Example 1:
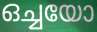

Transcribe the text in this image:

ഒച്ചയോ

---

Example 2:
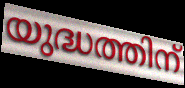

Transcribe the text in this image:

യുദ്ധത്തിന്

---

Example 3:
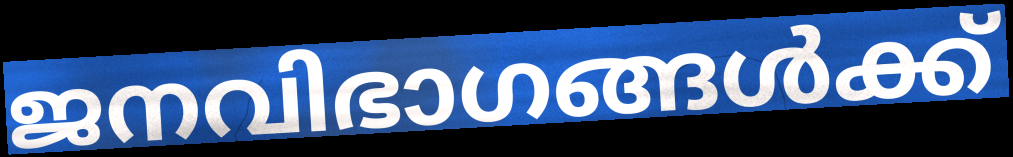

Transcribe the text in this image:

ജനവിഭാഗങ്ങൾക്ക്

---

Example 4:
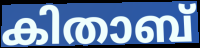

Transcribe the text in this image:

കിതാബ്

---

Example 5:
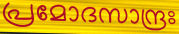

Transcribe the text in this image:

പ്രമോദസാന്ദ്രഃ